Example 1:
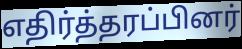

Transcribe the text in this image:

எதிர்த்தரப்பினர்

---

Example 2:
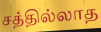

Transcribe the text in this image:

சத்தில்லாத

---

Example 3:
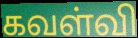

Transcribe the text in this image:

கவள்வி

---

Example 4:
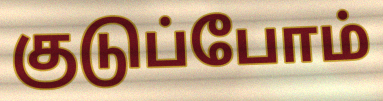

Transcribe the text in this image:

குடுப்போம்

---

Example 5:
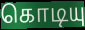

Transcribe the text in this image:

கொடியு